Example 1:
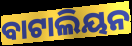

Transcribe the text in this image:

ବାଟାଲିୟନ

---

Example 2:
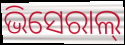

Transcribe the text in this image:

ଭିସେରାଲ୍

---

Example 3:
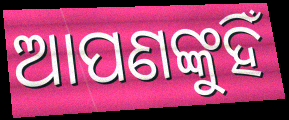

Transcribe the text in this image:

ଆପଣଙ୍କୁହିଁ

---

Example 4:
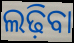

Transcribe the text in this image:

ଲଢ଼ିବା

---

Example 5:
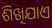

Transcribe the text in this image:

ଶିଖିଯାଏ